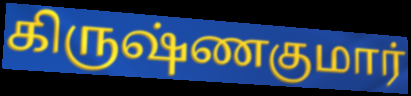
கிருஷ்ணகுமார்